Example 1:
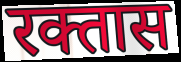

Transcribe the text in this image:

रक्तास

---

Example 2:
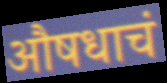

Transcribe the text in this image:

औषधाचं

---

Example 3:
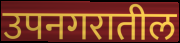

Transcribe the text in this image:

उपनगरातील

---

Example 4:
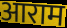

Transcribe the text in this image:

आराम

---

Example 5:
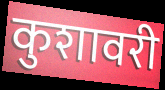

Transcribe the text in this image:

कुशावरी